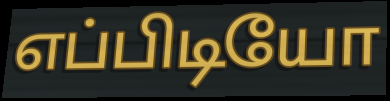
எப்பிடியோ